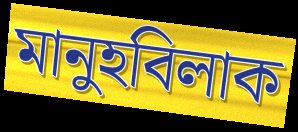
মানুহবিলাক